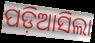
ପଡ଼ିଆସିଲା